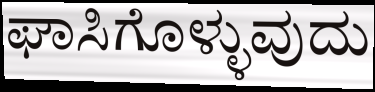
ಘಾಸಿಗೊಳ್ಳುವುದು